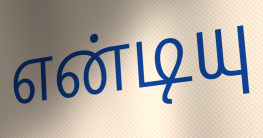
என்டியு